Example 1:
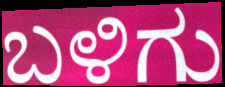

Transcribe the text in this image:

ಬಳಿಗು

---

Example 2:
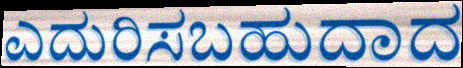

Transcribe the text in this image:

ಎದುರಿಸಬಹುದಾದ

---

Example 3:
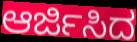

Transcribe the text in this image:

ಆರ್ಜಿಸಿದ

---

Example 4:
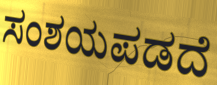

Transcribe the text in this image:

ಸಂಶಯಪಡದೆ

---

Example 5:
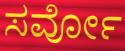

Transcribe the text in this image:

ಸರ್ವೋ